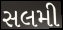
સલમી